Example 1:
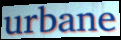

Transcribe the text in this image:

urbane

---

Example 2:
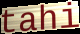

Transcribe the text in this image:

tahi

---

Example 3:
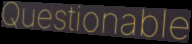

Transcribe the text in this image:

Questionable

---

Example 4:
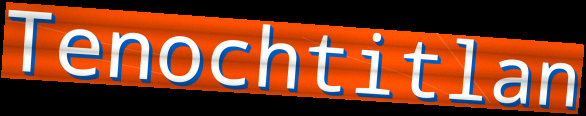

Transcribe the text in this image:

Tenochtitlan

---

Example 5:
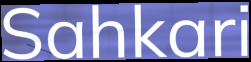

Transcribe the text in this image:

Sahkari